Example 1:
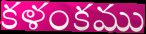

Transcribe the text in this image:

కళంకము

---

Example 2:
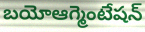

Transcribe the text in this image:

బయోఆగ్మెంటేషన్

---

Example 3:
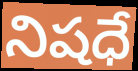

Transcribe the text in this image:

నిషధే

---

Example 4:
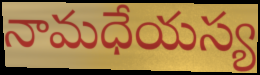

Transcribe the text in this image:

నామధేయస్య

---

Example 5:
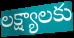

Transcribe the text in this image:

లక్ష్యాలకు